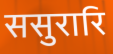
ससुरारि